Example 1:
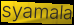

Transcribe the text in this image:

syamala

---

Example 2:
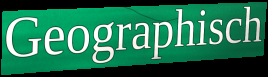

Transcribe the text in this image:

Geographisch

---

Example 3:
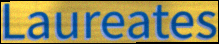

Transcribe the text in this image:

Laureates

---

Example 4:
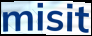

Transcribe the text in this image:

misit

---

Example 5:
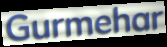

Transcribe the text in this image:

Gurmehar